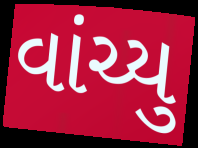
વાંચ્યુ